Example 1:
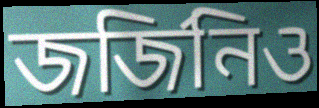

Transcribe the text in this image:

জর্জিনিও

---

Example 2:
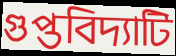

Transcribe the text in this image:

গুপ্তবিদ্যাটি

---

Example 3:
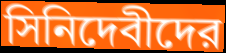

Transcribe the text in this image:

সিনিদেবীদের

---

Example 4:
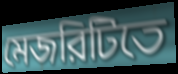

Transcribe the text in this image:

মেজরিটিতে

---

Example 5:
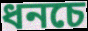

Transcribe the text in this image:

ধনচে